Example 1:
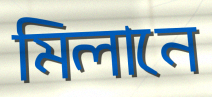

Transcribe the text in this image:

মিলানে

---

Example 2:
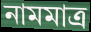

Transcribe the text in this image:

নামমাত্র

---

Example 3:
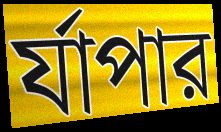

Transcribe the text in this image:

র্যাপার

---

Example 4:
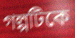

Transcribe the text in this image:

গল্পটিকে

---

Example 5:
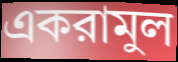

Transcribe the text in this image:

একরামুল